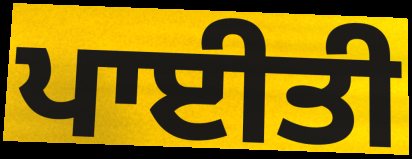
ਪਾਈਤੀ